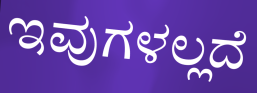
ಇವುಗಳಲ್ಲದೆ